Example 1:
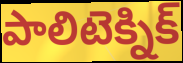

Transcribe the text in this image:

పాలిటెక్నిక్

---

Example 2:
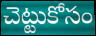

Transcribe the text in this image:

చెట్టుకోసం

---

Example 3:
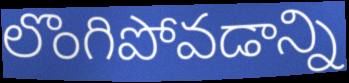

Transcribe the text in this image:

లొంగిపోవడాన్ని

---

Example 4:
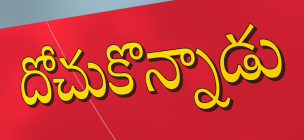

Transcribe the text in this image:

దోచుకొన్నాడు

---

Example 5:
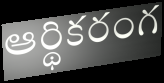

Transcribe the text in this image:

ఆర్థికరంగ